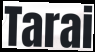
Tarai